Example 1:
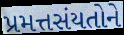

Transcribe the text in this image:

પ્રમત્તસંયતોને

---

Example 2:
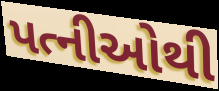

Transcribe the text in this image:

પત્નીઓથી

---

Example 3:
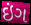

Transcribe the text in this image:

ઇંગ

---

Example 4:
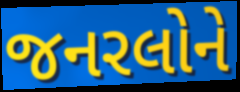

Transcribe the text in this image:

જનરલોને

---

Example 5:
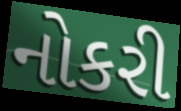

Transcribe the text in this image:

નોકરી